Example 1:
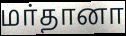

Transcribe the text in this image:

மர்தானா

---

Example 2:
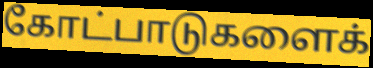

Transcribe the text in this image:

கோட்பாடுகளைக்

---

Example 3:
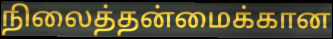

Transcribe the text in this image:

நிலைத்தன்மைக்கான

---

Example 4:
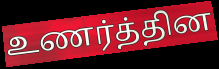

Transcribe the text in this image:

உணர்த்தின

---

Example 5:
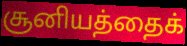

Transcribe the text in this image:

சூனியத்தைக்